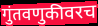
गुंतवणुकीवरच